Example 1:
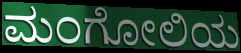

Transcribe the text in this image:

ಮಂಗೋಲಿಯ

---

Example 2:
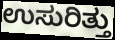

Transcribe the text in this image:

ಉಸುರಿತ್ತು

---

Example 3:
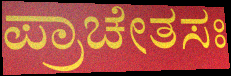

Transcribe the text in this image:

ಪ್ರಾಚೇತಸಃ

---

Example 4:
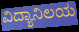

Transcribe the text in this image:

ವಿದ್ಯಾನಿಲಯ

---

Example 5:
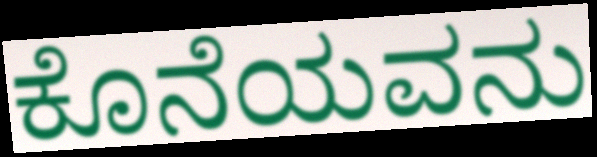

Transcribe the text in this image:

ಕೊನೆಯವನು